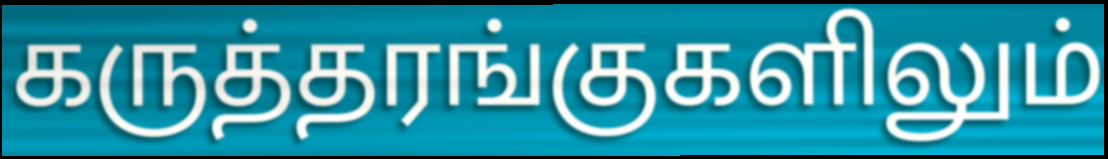
கருத்தரங்குகளிலும்